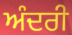
ਅੰਦਰੀ